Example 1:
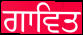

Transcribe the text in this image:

ਗਾਵਿਤ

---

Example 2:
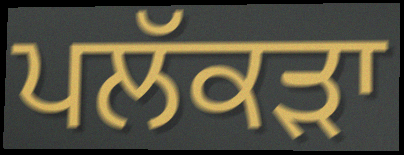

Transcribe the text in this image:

ਪਲੱਕੜਾ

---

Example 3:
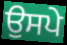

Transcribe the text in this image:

ਉਸਪੇ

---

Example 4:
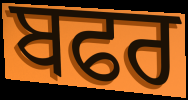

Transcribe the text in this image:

ਬਫਰ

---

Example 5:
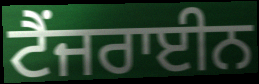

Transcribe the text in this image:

ਟੈਂਜਰਾਈਨ